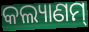
କଲ୍ୟାଣମ୍